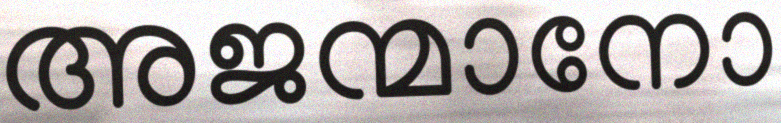
അജന്മാനോ